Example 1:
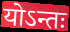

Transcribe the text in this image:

योऽन्तः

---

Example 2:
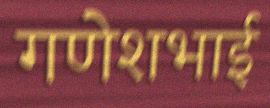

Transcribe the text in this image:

गणेशभाई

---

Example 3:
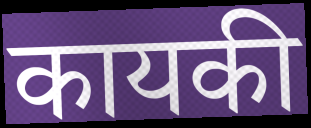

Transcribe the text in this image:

कायकी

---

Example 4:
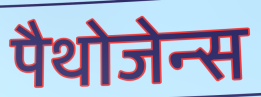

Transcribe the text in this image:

पैथोजेन्स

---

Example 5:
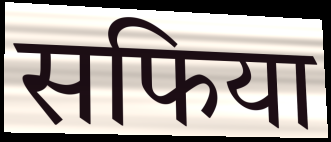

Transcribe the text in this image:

सफिया